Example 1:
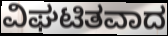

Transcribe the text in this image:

ವಿಘಟಿತವಾದ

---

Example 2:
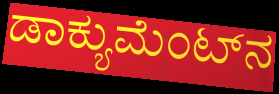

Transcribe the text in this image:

ಡಾಕ್ಯುಮೆಂಟ್‌ನ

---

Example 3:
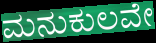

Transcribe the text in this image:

ಮನುಕುಲವೇ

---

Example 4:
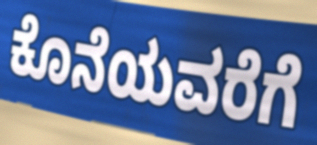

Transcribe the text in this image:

ಕೊನೆಯವರೆಗೆ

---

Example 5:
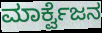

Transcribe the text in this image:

ಮಾರ್ಕ್ವೆಜನ